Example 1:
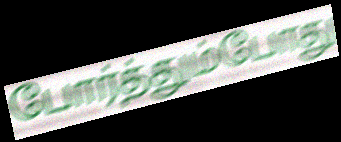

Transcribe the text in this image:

போர்த்தும்போது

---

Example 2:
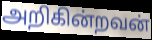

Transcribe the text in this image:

அறிகின்றவன்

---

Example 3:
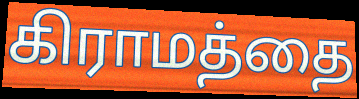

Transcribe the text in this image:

கிராமத்தை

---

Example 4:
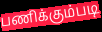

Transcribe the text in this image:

பணிக்கும்படி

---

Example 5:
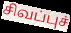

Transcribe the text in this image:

சிவப்புச்